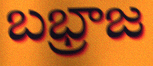
బభ్రాజ